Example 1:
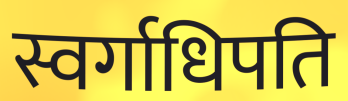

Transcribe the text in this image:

स्वर्गाधिपति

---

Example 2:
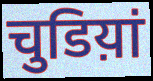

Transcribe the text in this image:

चुडिय़ां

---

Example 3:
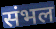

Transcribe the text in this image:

संभल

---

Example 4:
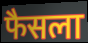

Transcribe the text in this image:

फैसला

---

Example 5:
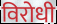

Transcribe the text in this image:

विरोधी